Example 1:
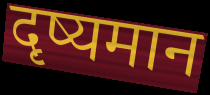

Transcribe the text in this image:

दृष्यमान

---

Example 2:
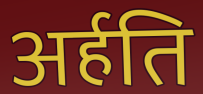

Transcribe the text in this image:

अर्हति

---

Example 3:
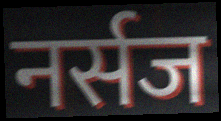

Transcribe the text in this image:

नर्सज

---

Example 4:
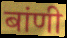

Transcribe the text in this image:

बांणी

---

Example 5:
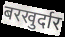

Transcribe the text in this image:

बरखुर्दार